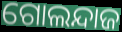
ଗୋଲନ୍ଦାଜ